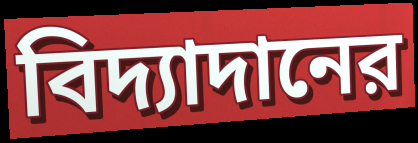
বিদ্যাদানের